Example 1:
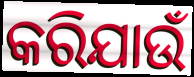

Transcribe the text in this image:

କରିଯାଉଁ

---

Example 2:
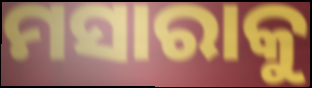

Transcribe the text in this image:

ମସାରାକୁ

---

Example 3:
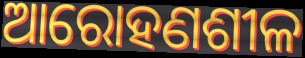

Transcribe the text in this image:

ଆରୋହଣଶୀଳ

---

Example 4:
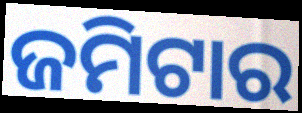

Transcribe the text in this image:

ଜମିଟାର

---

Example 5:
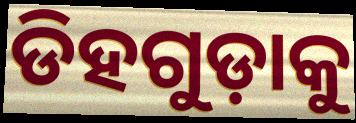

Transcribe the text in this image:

ଡିହଗୁଡ଼ାକୁ